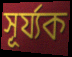
সূৰ্য্যক